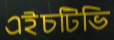
এইচটিভি